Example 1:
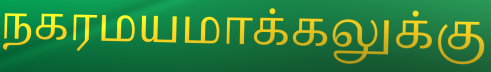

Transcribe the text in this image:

நகரமயமாக்கலுக்கு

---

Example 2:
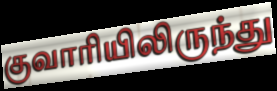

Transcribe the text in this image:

குவாரியிலிருந்து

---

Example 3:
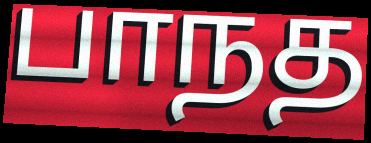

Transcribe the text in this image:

பாநத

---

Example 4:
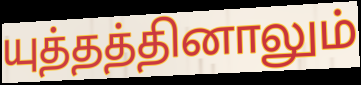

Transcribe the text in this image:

யுத்தத்தினாலும்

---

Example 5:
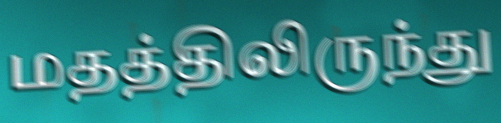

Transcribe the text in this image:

மதத்திலிருந்து